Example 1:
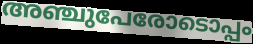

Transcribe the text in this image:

അഞ്ചുപേരോടൊപ്പം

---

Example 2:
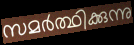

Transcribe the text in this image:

സമർത്ഥിക്കുന്നു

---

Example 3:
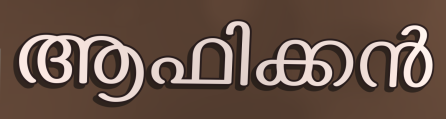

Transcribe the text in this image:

ആഫിക്കൻ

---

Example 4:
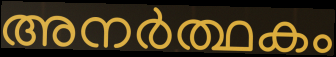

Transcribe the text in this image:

അനർത്ഥകം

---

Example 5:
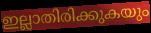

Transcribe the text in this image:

ഇല്ലാതിരിക്കുകയും